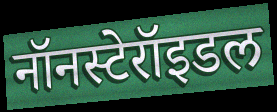
नॉनस्टेरॉइडल